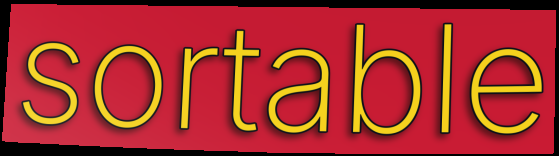
sortable